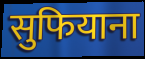
सुफियाना